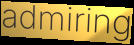
admiring